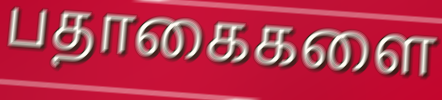
பதாகைகளை